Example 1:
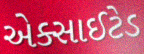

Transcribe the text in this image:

એક્સાઈટેડ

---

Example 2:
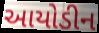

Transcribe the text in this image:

આયોડીન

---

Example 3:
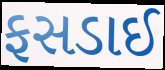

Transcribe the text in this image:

ફસડાઈ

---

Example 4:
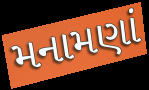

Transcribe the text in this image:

મનામણાં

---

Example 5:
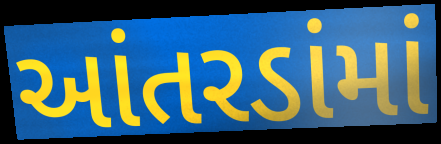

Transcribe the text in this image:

આંતરડાંમાં